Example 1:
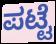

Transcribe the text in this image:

ಪಟ್ಟೆ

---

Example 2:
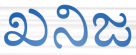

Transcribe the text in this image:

ಖನಿಜ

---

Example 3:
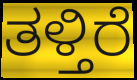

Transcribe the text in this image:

ತಳ್ತಿರೆ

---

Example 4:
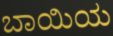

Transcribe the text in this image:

ಬಾಯಿಯ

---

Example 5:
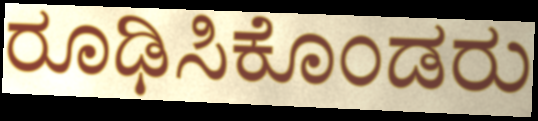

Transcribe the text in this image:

ರೂಢಿಸಿಕೊಂಡರು